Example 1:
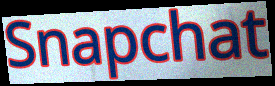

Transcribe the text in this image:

Snapchat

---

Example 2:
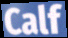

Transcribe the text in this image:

Calf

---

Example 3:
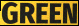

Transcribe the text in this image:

GREEN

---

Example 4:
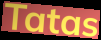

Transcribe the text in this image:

Tatas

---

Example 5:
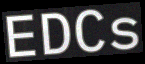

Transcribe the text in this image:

EDCs